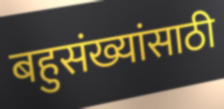
बहुसंख्यांसाठी